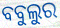
ବବୁଲୁର